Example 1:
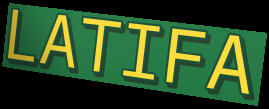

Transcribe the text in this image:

LATIFA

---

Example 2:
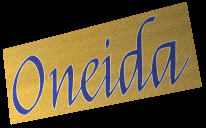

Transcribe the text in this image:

Oneida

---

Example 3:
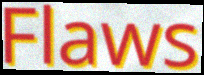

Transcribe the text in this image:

Flaws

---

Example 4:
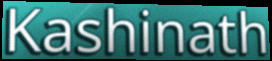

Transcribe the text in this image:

Kashinath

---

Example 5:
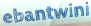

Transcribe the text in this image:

ebantwini